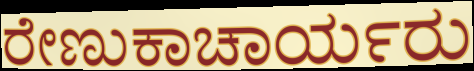
ರೇಣುಕಾಚಾರ್ಯರು